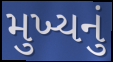
મુખ્યનું